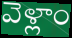
వెళ్లాం